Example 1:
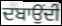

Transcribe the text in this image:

ਦਬਾਉਂਦੀ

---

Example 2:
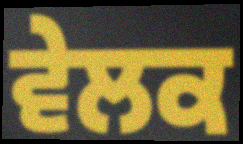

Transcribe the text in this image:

ਵੇਲਕ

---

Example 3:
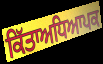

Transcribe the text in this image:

ਕਿੱਤਾਅਧਿਆਪਕ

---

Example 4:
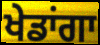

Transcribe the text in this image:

ਖੇਡਾਂਗਾ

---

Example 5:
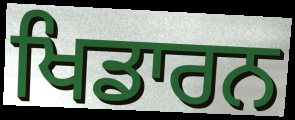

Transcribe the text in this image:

ਖਿਡਾਰਨ